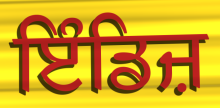
ਇੰਡਿਜ਼